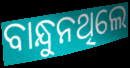
ବାନ୍ଧୁନଥିଲେ